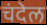
चंदेल